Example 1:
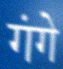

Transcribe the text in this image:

गंगे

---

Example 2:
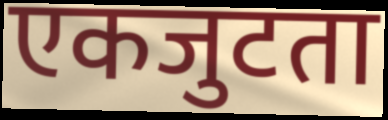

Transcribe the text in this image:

एकजुटता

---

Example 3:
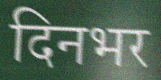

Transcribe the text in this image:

दिनभर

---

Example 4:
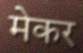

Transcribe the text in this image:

मेकर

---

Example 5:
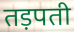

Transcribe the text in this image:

तड़पती